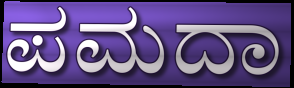
ಪಮದಾ